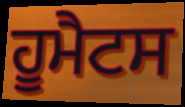
ਹੂਮੈਟਸ